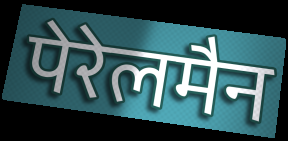
पेरेलमैन